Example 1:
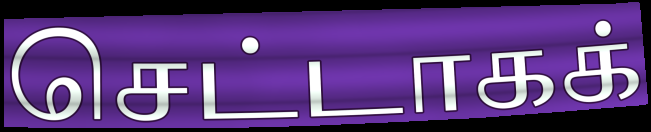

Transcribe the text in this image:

செட்டாகக்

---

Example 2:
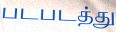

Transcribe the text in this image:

படபடத்து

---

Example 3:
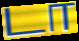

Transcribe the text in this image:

டா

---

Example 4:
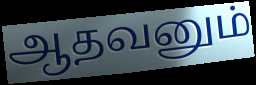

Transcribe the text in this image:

ஆதவனும்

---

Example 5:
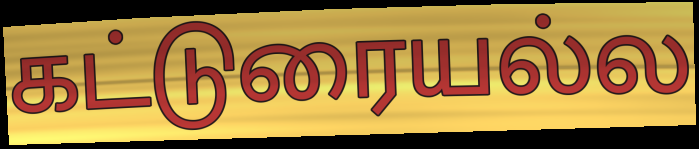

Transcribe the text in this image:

கட்டுரையல்ல